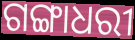
ଗଙ୍ଗାଧରୀ